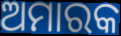
ଅମାରକ